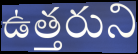
ఉత్తరుని